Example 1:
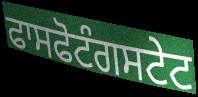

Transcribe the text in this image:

ਫਾਸਫੋਟੰਗਸਟੇਟ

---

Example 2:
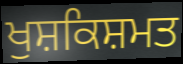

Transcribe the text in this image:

ਖੁਸ਼ਕਿਸ਼ਮਤ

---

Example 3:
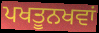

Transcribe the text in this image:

ਪਖਤੂਨਖਵਾਂ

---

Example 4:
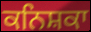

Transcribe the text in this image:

ਕਨਿਸ਼ਕਾ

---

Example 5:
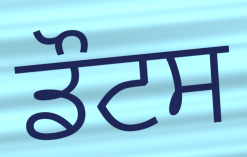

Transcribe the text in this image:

ਡੌਟਸ